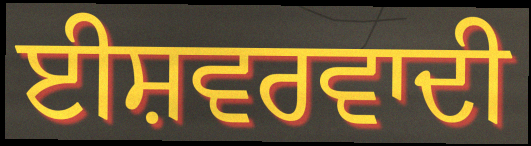
ਈਸ਼ਵਰਵਾਦੀ